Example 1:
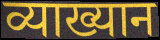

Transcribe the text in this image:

व्याख्यान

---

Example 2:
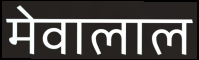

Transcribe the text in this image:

मेवालाल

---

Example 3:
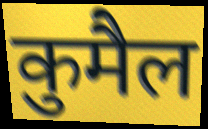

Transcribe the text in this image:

कुमैल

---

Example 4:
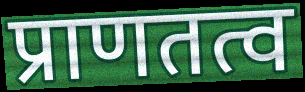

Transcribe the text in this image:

प्राणतत्व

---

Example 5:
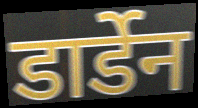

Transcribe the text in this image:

डार्डेन